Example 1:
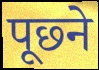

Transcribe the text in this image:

पूछ्ने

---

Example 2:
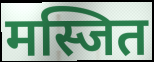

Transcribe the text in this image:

मस्जित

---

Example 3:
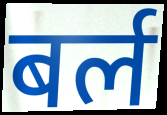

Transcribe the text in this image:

बर्ल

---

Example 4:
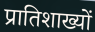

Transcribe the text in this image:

प्रातिशाख्यों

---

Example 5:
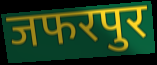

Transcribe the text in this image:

जफरपुर